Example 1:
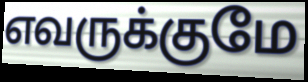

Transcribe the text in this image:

எவருக்குமே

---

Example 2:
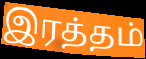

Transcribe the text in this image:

இரத்தம்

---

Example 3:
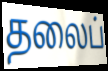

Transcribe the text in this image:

தலைப்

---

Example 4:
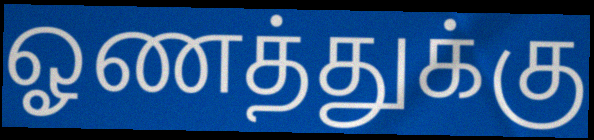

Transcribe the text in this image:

ஓணத்துக்கு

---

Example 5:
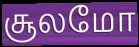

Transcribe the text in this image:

சூலமோ